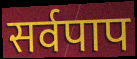
सर्वपाप